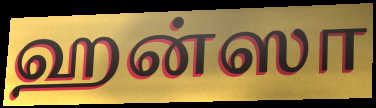
ஹன்ஸா